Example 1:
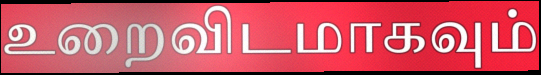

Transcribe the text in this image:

உறைவிடமாகவும்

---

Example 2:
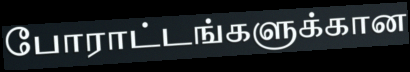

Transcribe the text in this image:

போராட்டங்களுக்கான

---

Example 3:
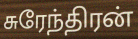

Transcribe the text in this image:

சுரேந்திரன்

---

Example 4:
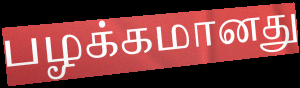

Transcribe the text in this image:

பழக்கமானது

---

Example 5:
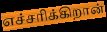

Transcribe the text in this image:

எச்சரிக்கிறான்